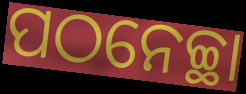
ପଠନେଚ୍ଛା